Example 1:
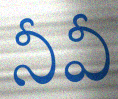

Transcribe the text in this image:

నీవీ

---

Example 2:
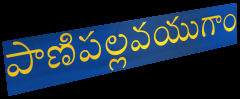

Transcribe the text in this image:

పాణిపల్లవయుగాం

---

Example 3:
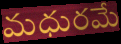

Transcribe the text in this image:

మధురమే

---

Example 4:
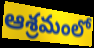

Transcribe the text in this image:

ఆశ్రమంలో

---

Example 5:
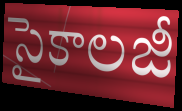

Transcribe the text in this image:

సైకాలజీ